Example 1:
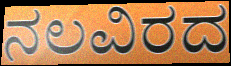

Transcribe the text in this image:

ನಲವಿರದ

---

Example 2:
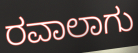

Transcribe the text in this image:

ರವಾಲಾಗು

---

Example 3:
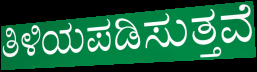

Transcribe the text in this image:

ತಿಳಿಯಪಡಿಸುತ್ತವೆ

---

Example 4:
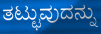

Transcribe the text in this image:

ತಟ್ಟುವುದನ್ನು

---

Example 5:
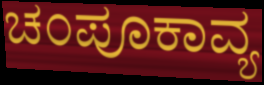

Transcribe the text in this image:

ಚಂಪೂಕಾವ್ಯ